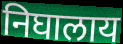
निघालाय